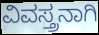
ವಿವಸ್ತ್ರನಾಗಿ